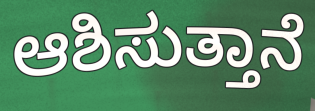
ಆಶಿಸುತ್ತಾನೆ